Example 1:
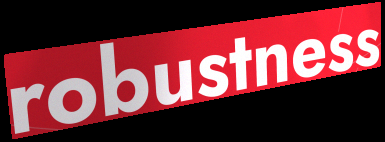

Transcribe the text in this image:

robustness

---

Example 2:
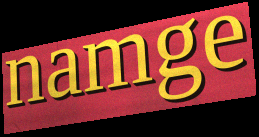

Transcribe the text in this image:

namge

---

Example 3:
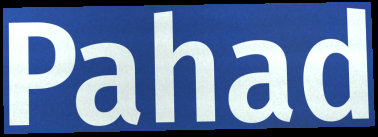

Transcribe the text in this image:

Pahad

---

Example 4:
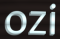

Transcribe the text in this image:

ozi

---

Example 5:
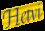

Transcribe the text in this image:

Hetvi